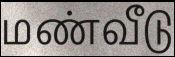
மண்வீடு